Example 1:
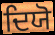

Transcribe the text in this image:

ਦਿਯੋ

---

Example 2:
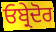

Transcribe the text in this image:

ਓਬ੍ਰੇਦੋਰ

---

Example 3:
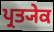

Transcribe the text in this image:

ਪ੍ਰਤ੍ਯੇਕ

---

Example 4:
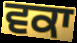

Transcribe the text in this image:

ਵਕਾ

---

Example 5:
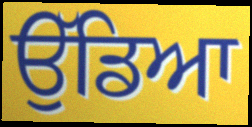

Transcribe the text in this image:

ਉੱਡਿਆ